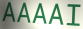
AAAAI